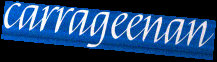
carrageenan